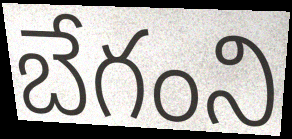
బేగంని